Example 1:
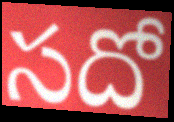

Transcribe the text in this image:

సదో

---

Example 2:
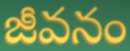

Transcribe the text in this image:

జీవనం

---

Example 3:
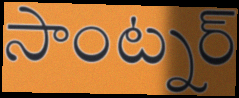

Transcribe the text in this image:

సాంట్నర్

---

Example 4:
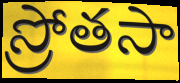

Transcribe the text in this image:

స్రోతసా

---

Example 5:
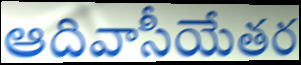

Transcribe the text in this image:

ఆదివాసీయేతర